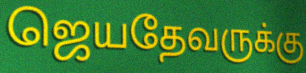
ஜெயதேவருக்கு